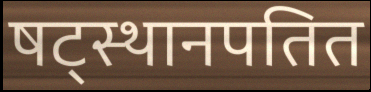
षट्स्थानपतित